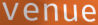
venue